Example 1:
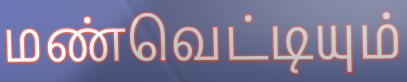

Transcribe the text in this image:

மண்வெட்டியும்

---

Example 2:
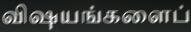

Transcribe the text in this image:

விஷயங்களைப்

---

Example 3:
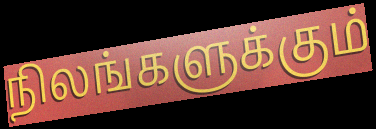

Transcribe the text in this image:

நிலங்களுக்கும்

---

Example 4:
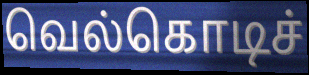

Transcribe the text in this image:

வெல்கொடிச்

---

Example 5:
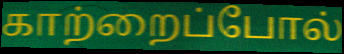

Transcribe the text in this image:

காற்றைப்போல்